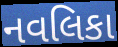
નવલિકા